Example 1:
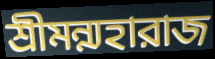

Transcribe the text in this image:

শ্রীমন্মহারাজ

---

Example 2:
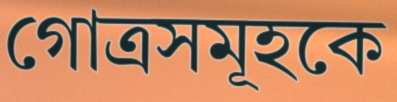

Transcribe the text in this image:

গোত্রসমূহকে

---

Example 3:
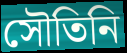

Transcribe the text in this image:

সৌতিনি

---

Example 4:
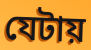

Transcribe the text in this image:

যেটায়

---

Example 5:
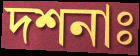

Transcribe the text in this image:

দশনাঃ